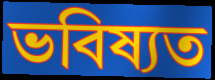
ভবিষ্যত